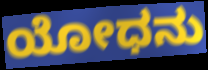
ಯೋಧನು